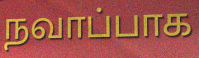
நவாப்பாக